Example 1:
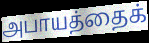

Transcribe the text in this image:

அபாயத்தைக்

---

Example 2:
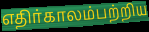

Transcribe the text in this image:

எதிர்காலம்பற்றிய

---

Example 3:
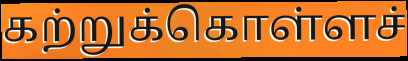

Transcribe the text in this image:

கற்றுக்கொள்ளச்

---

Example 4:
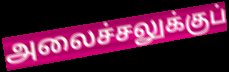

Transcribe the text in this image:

அலைச்சலுக்குப்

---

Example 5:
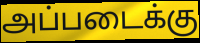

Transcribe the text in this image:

அப்படைக்கு